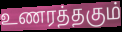
உணரத்தகும்